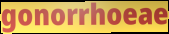
gonorrhoeae